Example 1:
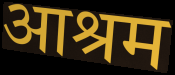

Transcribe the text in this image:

आश्रम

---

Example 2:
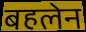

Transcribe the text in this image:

बहलेन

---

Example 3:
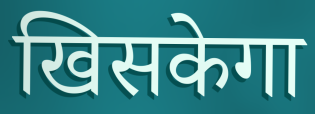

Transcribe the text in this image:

खिसकेगा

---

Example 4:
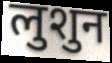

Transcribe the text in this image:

लुशुन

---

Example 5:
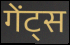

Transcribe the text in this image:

गेंट्स